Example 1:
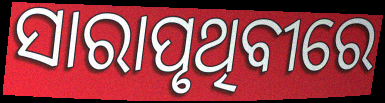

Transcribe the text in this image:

ସାରାପୃଥିବୀରେ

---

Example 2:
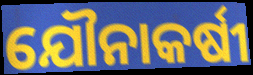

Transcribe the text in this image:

ଯୌନାକର୍ଷୀ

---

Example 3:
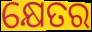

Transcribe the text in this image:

କ୍ଷେତର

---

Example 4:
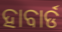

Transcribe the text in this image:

ହାବାର୍ଡ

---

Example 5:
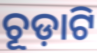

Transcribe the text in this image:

ଚୂଡ଼ାଟି